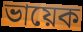
ভায়েক